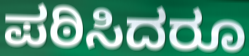
ಪಠಿಸಿದರೂ